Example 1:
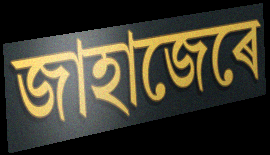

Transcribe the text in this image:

জাহাজেৰে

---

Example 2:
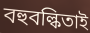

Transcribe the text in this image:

বহুবল্কিতাই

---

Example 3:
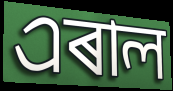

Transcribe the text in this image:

এৰাল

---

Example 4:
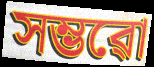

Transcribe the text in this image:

সম্ভৱো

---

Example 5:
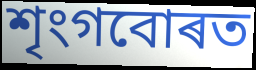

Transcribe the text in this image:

শৃংগবোৰত